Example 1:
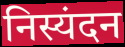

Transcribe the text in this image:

निस्यंदन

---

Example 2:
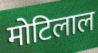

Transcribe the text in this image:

मोटिलाल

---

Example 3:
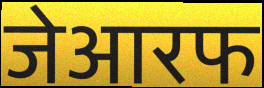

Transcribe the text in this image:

जेआरफ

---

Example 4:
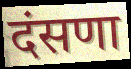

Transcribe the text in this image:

दंसणा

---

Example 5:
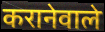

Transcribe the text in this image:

करानेवाले